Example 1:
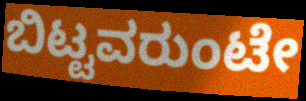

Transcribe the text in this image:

ಬಿಟ್ಟವರುಂಟೇ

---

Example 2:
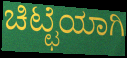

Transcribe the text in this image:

ಚಿಟ್ಟೆಯಾಗಿ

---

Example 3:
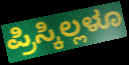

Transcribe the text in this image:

ಪ್ರಿಸ್ಕಿಲ್ಲಳೂ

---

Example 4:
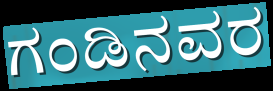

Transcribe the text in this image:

ಗಂಡಿನವರ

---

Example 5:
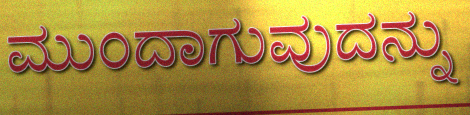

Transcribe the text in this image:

ಮುಂದಾಗುವುದನ್ನು